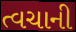
ત્વચાની